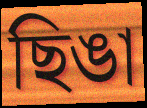
ছিঙা